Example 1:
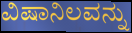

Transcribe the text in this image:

ವಿಷಾನಿಲವನ್ನು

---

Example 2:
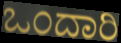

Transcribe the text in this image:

ಒಂದಾರಿ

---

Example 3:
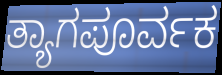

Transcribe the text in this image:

ತ್ಯಾಗಪೂರ್ವಕ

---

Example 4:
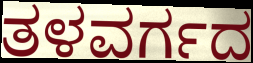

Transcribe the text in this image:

ತಳವರ್ಗದ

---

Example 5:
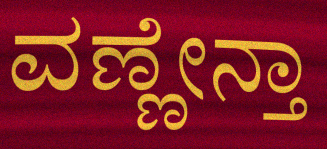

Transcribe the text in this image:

ವಣ್ಣೇನ್ತಾ